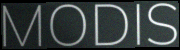
MODIS